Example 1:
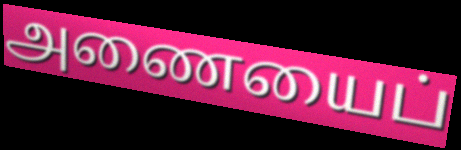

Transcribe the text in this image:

அணையைப்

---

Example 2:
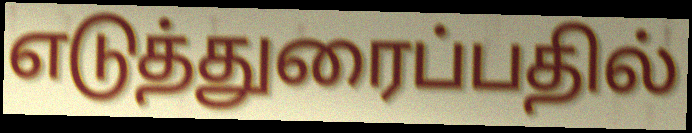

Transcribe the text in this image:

எடுத்துரைப்பதில்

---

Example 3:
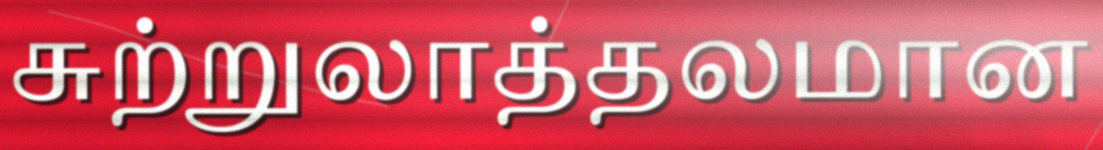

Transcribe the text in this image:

சுற்றுலாத்தலமான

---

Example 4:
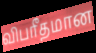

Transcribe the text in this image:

விபரீதமான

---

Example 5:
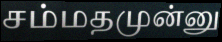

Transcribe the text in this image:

சம்மதமுன்னு